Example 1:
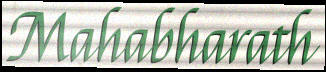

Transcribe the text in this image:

Mahabharath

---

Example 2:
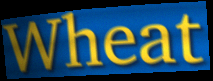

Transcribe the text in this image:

Wheat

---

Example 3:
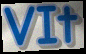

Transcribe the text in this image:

VIt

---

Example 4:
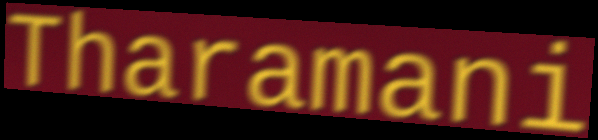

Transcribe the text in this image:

Tharamani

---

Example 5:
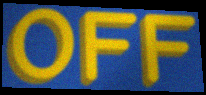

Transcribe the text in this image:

OFF